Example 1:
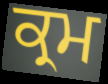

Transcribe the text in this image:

ਕ੍ਰਮ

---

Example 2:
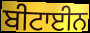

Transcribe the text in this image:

ਬੀਟਾਈਨ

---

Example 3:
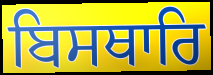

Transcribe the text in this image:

ਬਿਸਥਾਰਿ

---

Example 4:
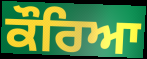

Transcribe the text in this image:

ਕੌਰਿਆ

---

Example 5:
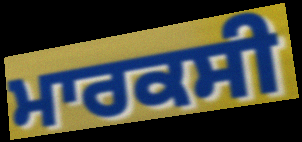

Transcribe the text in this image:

ਮਾਰਕਸੀ